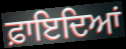
ਫ਼ਾਇਦਿਆਂ